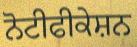
ਨੋਟੀਫੀਕੇਸ਼ਨ